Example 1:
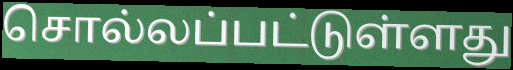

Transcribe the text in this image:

சொல்லப்பட்டுள்ளது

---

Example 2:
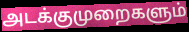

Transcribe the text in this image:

அடக்குமுறைகளும்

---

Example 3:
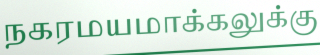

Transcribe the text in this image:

நகரமயமாக்கலுக்கு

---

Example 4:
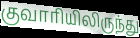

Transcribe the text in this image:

குவாரியிலிருந்து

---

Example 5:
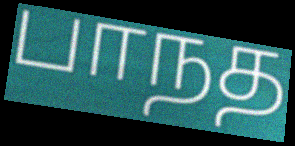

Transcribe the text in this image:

பாநத